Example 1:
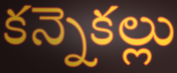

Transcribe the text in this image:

కన్నెకల్లు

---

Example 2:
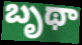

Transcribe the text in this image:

బృథా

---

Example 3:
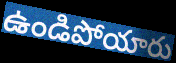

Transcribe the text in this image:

ఉండిపోయారు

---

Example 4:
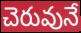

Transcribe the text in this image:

చెరువునే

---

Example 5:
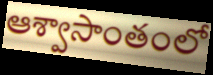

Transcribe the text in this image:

ఆశ్వాసాంతంలో